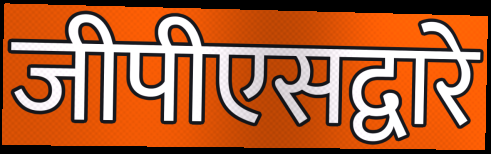
जीपीएसद्वारे